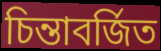
চিন্তাবর্জিত